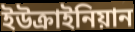
ইউক্রাইনিয়ান